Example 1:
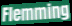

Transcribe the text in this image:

Flemming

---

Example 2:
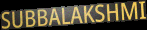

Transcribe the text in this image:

SUBBALAKSHMI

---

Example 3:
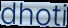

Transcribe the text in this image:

dhoti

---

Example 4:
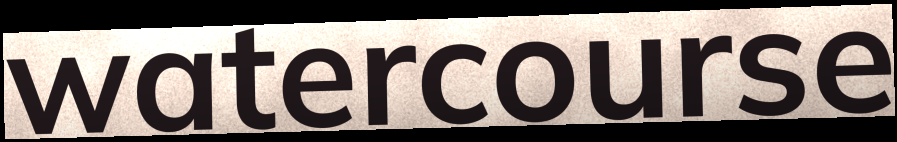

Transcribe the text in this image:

watercourse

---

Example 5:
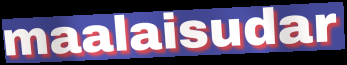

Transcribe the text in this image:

maalaisudar